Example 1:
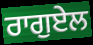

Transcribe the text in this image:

ਰਾਗੁਏਲ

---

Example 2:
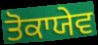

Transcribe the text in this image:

ਤੋਕਾਯੇਵ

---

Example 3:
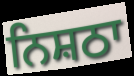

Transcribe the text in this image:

ਨਿਸ਼ਠਾ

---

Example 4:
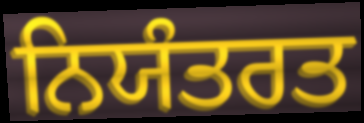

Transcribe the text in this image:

ਨਿਯੰਤਰਤ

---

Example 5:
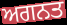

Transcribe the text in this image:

ਅਗਨਤ